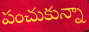
పంచుకున్నా